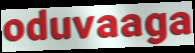
oduvaaga